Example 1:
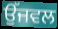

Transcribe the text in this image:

ਉੱਜਵਲ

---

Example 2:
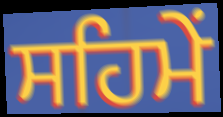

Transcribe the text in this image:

ਸਹਿਮੇਂ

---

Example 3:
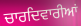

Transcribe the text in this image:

ਚਾਰਦਿਵਾਰੀਆਂ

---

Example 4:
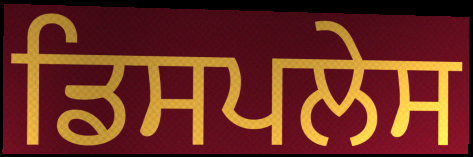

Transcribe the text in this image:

ਡਿਸਪਲੇਸ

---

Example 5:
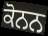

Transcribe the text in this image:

ਕੋਨਨ